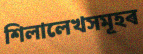
শিলালেখসমূহৰ